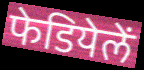
फेडियेलें